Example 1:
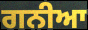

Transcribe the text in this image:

ਗਨੀਆ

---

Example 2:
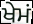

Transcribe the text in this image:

ਖੇਮਂ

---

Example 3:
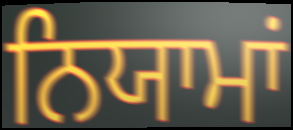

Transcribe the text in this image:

ਨਿਯਾਮਾਂ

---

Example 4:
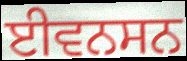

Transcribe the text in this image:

ਈਵਨਸਨ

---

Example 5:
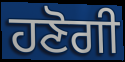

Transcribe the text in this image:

ਹਣੋਗੀ